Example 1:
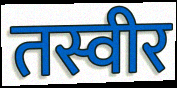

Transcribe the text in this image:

तस्वीर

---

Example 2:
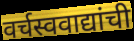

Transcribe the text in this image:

वर्चस्ववाद्यांची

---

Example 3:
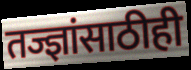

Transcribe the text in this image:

तज्ज्ञांसाठीही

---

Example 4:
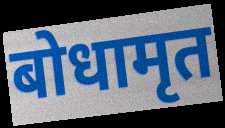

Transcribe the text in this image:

बोधामृत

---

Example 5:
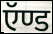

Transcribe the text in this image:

ऍण्ड